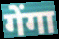
गेंगा